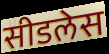
सीडलेस